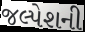
જલ્પેશની